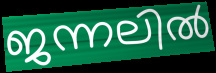
ജന്നലിൽ